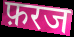
फ़रज